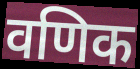
वणिक